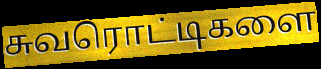
சுவரொட்டிகளை